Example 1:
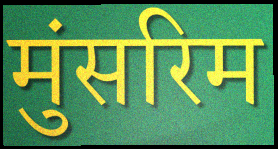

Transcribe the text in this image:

मुंसरिम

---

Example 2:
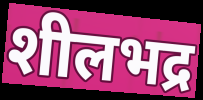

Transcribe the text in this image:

शीलभद्र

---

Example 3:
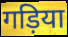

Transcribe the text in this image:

गड़िया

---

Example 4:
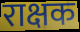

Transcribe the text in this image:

राक्षक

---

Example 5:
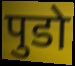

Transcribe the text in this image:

पुडो